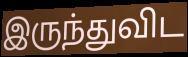
இருந்துவிட